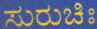
ಸುರುಚಿಃ